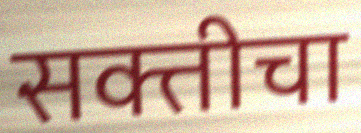
सक्तीचा